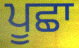
ਪੂਛਾ